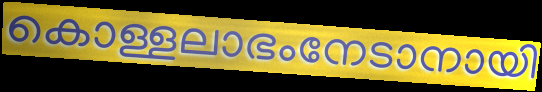
കൊള്ളലാഭംനേടാനായി